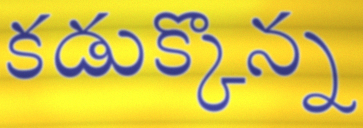
కడుక్కొన్న